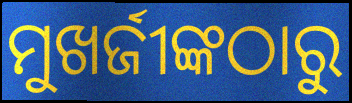
ମୁଖର୍ଜୀଙ୍କଠାରୁ